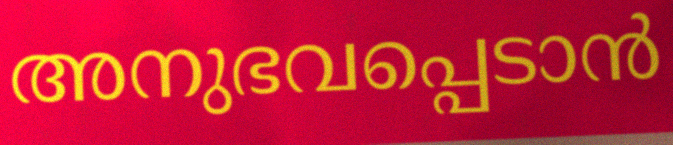
അനുഭവപ്പെടാൻ